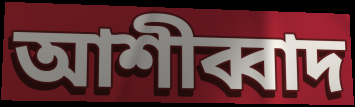
আশীব্বাদ